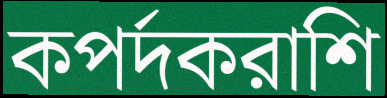
কপর্দকরাশি